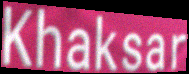
Khaksar